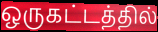
ஒருகட்டத்தில்